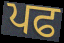
ਪਫ